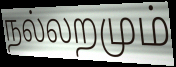
நல்லறமும்